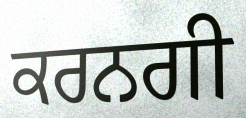
ਕਰਨਗੀ